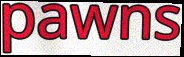
pawns